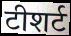
टीशर्ट